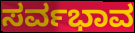
ಸರ್ವಭಾವ